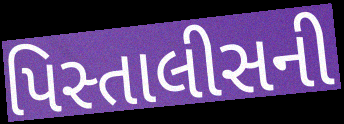
પિસ્તાલીસની